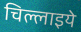
चिल्लाइये